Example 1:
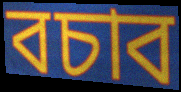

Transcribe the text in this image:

বচাব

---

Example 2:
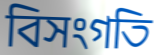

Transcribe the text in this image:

বিসংগতি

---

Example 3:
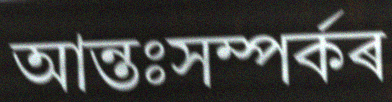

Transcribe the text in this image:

আন্তঃসম্পৰ্কৰ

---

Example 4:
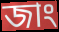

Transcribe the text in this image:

জাং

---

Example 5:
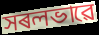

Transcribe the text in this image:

সৰলভাৱে